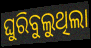
ଘୁରିବୁଲୁଥିଲା